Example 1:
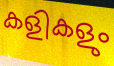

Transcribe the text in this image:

കളികളും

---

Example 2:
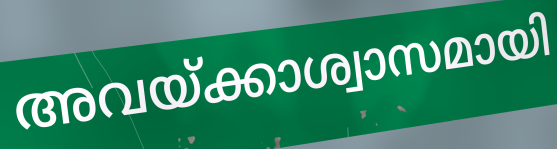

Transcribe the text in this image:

അവയ്ക്കാശ്വാസമായി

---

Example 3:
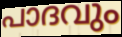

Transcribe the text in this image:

പാദവും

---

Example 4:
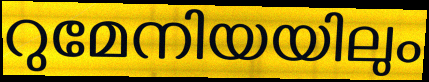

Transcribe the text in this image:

റുമേനിയയിലും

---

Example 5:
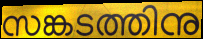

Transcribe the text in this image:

സങ്കടത്തിനു